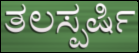
ತಲಸ್ಪರ್ಷಿ